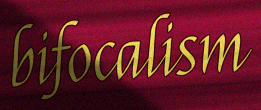
bifocalism